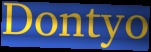
Dontyo